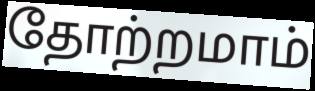
தோற்றமாம்